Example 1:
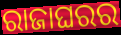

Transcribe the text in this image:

ରାଜାଘରର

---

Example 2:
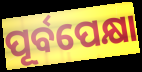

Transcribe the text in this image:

ପୂର୍ବପେକ୍ଷା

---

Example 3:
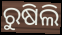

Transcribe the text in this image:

ରୁଷିଲି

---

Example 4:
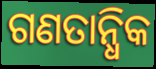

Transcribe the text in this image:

ଗଣତାନ୍ଧିକ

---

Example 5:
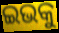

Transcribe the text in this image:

ଇଭକୁ